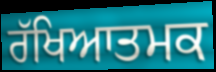
ਰੱਖਿਆਤਮਕ